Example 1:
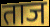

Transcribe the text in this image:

ताज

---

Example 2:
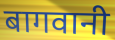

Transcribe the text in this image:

बागवानी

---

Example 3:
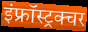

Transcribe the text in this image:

इंफ्रॉस्ट्रक्चर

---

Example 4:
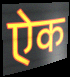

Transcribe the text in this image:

ऐक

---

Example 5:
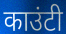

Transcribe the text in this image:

काउंटी